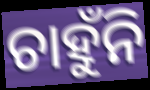
ଚାହୁଁନି